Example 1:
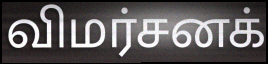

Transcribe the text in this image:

விமர்சனக்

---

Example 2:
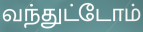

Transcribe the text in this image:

வந்துட்டோம்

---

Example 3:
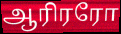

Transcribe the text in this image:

ஆரிரரோ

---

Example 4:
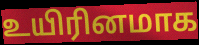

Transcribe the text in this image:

உயிரினமாக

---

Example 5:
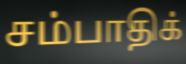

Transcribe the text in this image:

சம்பாதிக்